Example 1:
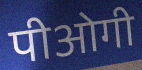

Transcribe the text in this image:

पीओगी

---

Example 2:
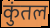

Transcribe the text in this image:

कुंतल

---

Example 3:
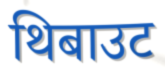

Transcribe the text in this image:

थिबाउट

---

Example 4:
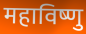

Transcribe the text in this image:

महाविष्णु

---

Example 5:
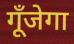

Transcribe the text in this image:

गूँजेगा